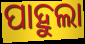
ପାହୁଲା